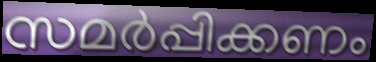
സമർപ്പിക്കണം